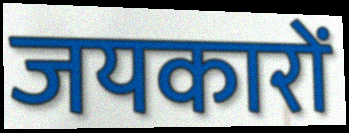
जयकारों